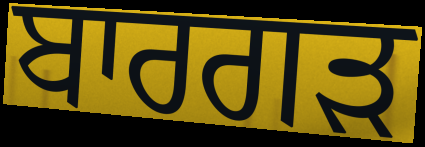
ਬਾਰਗੜ